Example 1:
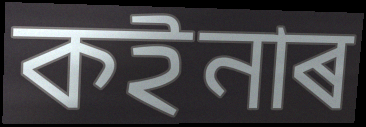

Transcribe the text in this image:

কইনাৰ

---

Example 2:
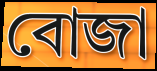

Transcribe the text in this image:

বোজা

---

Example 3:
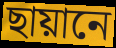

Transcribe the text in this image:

ছায়ানে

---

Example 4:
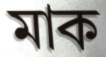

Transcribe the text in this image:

মাক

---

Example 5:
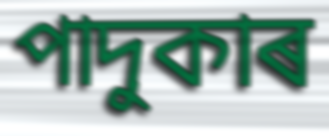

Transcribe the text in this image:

পাদুকাৰ